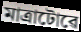
মাত্ৰাটোৱে